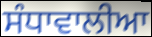
ਸੰਧਾਵਾਲੀਆ